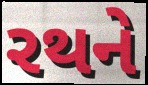
રથને